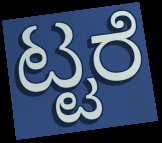
ಟ್ಟರೆ